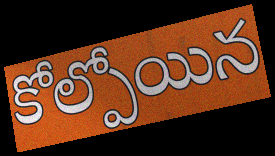
కోల్పోయిన